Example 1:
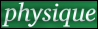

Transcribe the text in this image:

physique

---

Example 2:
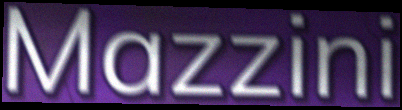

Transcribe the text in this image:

Mazzini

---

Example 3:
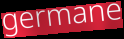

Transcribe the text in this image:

germane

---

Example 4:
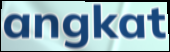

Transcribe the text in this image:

angkat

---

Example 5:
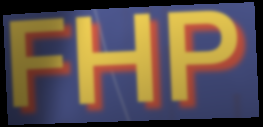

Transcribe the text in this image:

FHP